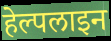
हेल्पलाइन